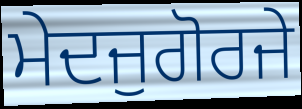
ਮੇਦਜੁਗੋਰਜੇ